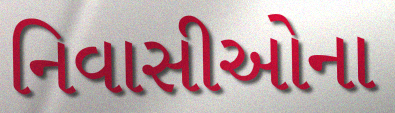
નિવાસીઓના